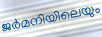
ജർമനിയിലെയും